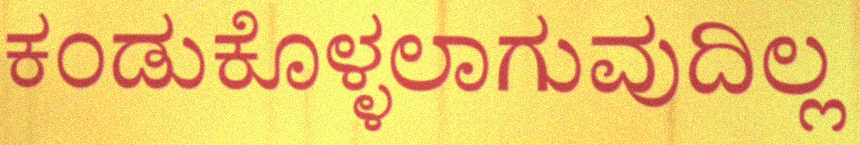
ಕಂಡುಕೊಳ್ಳಲಾಗುವುದಿಲ್ಲ